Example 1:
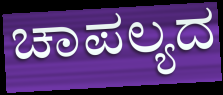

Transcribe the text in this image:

ಚಾಪಲ್ಯದ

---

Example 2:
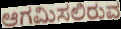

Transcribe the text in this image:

ಆಗಮಿಸಲಿರುವ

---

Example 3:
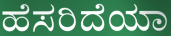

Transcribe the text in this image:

ಹೆಸರಿದೆಯಾ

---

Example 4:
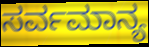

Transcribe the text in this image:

ಸರ್ವಮಾನ್ಯ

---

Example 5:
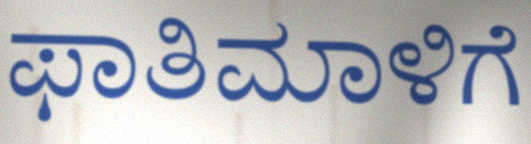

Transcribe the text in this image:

ಫಾತಿಮಾಳಿಗೆ